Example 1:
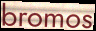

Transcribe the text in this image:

bromos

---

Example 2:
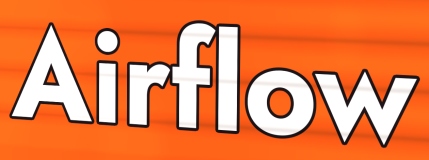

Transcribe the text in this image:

Airflow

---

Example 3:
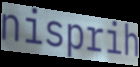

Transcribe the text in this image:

nisprih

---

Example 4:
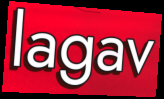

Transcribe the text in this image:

lagav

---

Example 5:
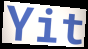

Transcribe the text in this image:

Yit